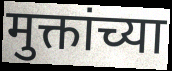
मुक्तांच्या